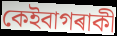
কেইবাগৰাকী